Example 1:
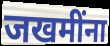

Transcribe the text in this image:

जखमींना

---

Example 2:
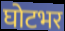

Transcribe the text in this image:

घोटभर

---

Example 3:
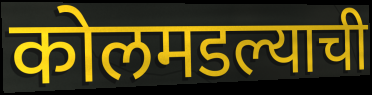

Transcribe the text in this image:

कोलमडल्याची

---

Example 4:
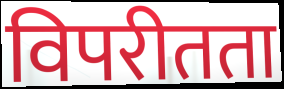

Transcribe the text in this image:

विपरीतता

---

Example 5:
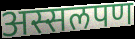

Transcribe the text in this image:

अस्सलपण